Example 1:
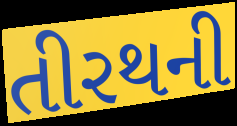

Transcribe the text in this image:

તીરથની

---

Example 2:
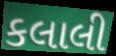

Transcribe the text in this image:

કલાલી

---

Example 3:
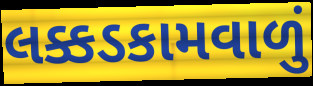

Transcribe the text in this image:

લક્કડકામવાળું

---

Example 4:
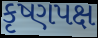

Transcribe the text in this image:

કૃષ્ણપક્ષ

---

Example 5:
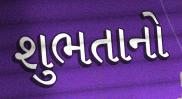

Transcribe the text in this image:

શુભતાનો